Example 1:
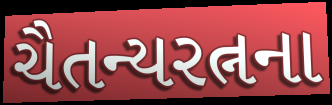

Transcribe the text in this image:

ચૈતન્યરત્નના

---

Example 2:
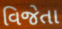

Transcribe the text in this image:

વિજેતા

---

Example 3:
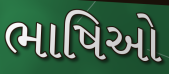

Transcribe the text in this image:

ભાષિઓ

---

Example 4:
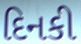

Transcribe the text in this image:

દિનકી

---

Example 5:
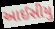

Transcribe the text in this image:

આઈસીયુ